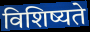
विशिष्यते